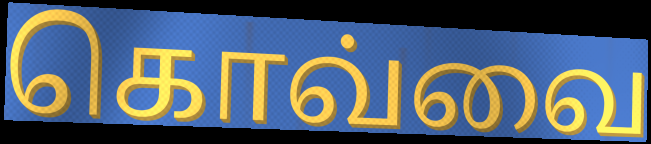
கொவ்வை